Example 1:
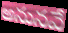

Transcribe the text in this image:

అనునవే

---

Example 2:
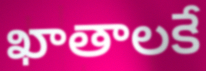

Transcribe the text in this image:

ఖాతాలకే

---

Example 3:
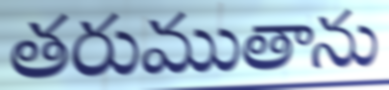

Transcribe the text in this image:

తరుముతాను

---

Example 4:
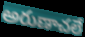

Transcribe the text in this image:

అరుణాచలే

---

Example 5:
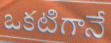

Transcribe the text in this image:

ఒకటిగానే